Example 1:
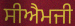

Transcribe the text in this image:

ਸੀਐਮਜੀ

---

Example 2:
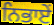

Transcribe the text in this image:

ਨਿਭਾਏਂ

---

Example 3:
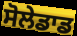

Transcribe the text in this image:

ਸੋਲੇਡਾਡ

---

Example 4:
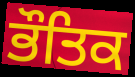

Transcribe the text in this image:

ਭੌਤਿਕ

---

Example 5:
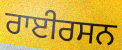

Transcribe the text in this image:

ਰਾਈਰਸਨ